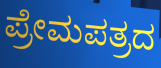
ಪ್ರೇಮಪತ್ರದ